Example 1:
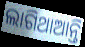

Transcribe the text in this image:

ଲାଗିଥାଆନ୍ତି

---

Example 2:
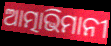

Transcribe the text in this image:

ଆତ୍ମାଭିମାନୀ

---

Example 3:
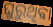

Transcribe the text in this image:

ଘୁରୁଥିବା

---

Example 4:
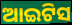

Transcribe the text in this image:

ଆଇଟିସ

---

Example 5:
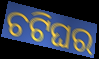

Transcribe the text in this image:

ଚଟିଘର